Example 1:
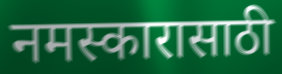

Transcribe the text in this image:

नमस्कारासाठी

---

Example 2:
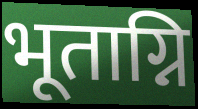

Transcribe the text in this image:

भूताग्नि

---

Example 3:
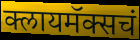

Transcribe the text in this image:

क्लायमॅक्सचं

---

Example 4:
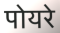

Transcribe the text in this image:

पोयरे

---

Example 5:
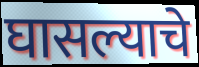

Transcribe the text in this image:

घासल्याचे